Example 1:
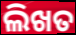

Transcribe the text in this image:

ଲିଖତ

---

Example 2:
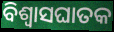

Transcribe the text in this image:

ବିଶ୍ୱାସଘାତକ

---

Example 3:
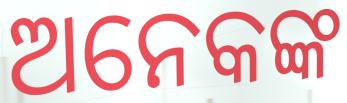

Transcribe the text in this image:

ଅନେକଙ୍କ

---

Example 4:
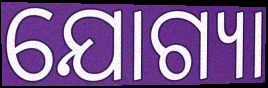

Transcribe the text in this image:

ଯୋଗ୍ୟା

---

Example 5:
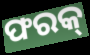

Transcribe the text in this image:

ଫରକ୍